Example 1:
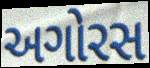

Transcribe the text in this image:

અગોરસ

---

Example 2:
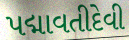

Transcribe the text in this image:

પદ્માવતીદેવી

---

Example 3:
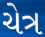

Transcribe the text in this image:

ચેત્ર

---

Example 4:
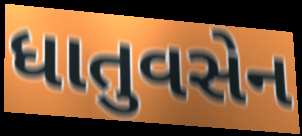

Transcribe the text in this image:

ધાતુવસેન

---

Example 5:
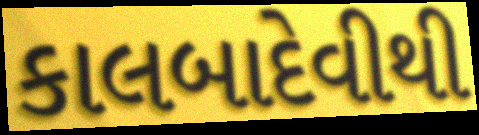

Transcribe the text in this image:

કાલબાદેવીથી